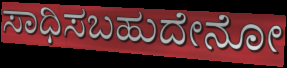
ಸಾಧಿಸಬಹುದೇನೋ